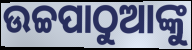
ଉଚ୍ଚପାଠୁଆଙ୍କୁ